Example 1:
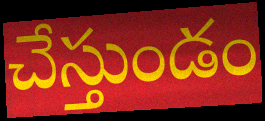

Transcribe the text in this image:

చేస్తుండం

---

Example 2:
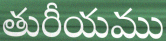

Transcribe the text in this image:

తురీయము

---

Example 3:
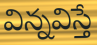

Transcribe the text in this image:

విన్నవిస్తే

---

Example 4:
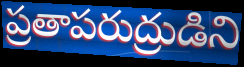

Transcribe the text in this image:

ప్రతాపరుద్రుడిని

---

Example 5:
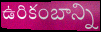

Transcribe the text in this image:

ఉరికంబాన్ని